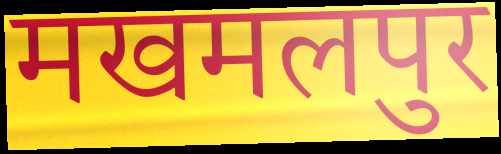
मखमलपुर